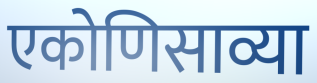
एकोणिसाव्या